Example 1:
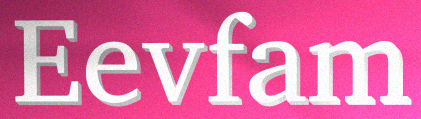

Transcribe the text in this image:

Eevfam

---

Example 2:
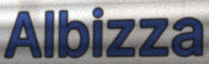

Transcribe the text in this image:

Albizza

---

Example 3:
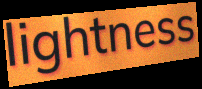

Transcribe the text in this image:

lightness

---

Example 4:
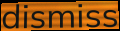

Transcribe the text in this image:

dismiss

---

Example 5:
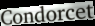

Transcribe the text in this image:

Condorcet